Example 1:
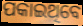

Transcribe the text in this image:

ପକାଇଥିବେ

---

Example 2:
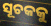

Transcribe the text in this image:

ସୂଚକକୁ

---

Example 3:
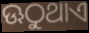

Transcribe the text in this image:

ଊଠୁଥାଏ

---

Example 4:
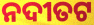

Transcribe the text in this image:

ନଦୀତଟ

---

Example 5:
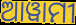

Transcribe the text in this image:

ଆୱାମୀ